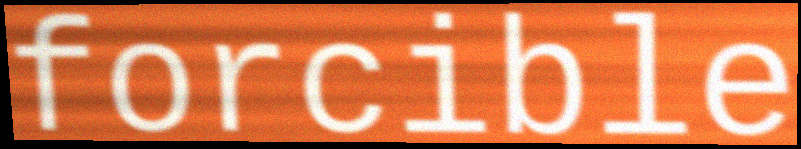
forcible